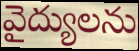
వైద్యులను